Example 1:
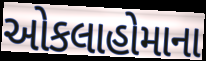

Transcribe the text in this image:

ઓકલાહોમાના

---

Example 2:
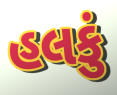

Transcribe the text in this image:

હલકું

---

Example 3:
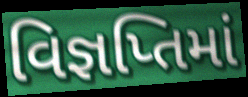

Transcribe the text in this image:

વિજ્ઞપ્તિમાં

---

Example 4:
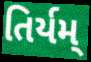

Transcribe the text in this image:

તિર્યમ્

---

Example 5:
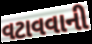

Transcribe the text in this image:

વટાવવાની